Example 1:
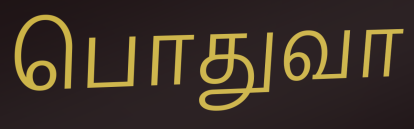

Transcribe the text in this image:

பொதுவா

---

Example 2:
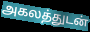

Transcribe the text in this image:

அகலத்துடன்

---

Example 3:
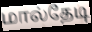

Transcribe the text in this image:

மால்தேடி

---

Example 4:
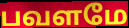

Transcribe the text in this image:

பவளமே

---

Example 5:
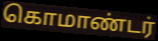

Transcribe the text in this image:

கொமாண்டர்